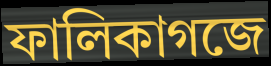
ফালিকাগজে